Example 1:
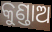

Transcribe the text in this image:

କୁଣ୍ଡାଅ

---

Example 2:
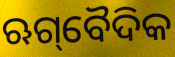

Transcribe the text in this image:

ଋଗ୍‌ବୈଦିକ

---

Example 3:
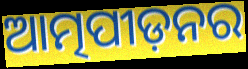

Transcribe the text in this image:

ଆତ୍ମପୀଡ଼ନର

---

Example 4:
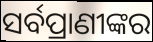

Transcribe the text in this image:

ସର୍ବପ୍ରାଣୀଙ୍କର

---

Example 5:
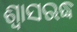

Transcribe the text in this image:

ଶ୍ୱାସଋଦ୍ଧ